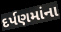
દર્પણમાંના